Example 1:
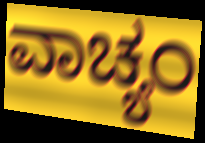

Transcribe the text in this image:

ವಾಚ್ಯಂ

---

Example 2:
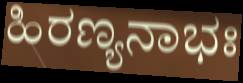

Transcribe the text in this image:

ಹಿರಣ್ಯನಾಭಃ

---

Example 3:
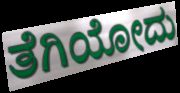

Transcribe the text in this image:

ತೆಗಿಯೋದು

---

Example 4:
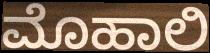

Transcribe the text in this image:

ಮೊಹಾಲಿ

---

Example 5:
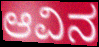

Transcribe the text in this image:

ಆವಿನ